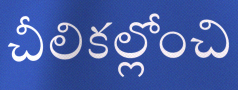
చీలికల్లోంచి